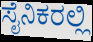
ಸೈನಿಕರಲ್ಲಿ